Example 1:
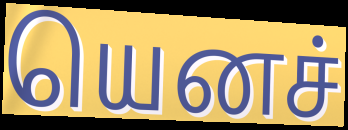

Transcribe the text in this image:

யெனச்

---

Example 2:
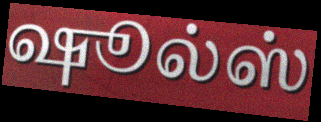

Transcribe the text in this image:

ஷூல்ஸ்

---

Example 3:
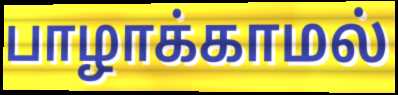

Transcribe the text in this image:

பாழாக்காமல்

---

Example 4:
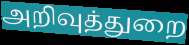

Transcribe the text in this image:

அறிவுத்துறை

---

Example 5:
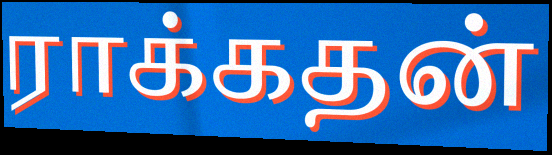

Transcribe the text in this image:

ராக்கதன்